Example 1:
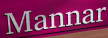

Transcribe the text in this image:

Mannar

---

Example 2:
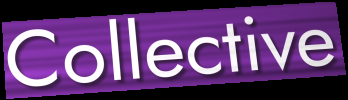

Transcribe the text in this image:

Collective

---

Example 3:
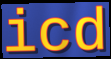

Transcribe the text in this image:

icd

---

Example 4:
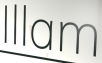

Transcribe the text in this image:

Illam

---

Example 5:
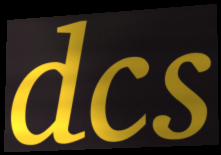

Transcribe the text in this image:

dcs